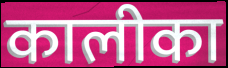
कालीका